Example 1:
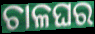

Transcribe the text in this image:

ଚାଳଘର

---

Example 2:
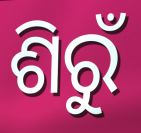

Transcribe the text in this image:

ଶିରୁଁ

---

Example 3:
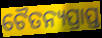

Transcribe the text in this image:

ଚୈତନ୍ୟପ୍ରାପ୍ତ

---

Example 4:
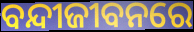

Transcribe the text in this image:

ବନ୍ଦୀଜୀବନରେ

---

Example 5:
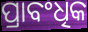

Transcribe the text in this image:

ପ୍ରାବଂଧିକ